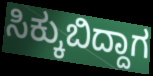
ಸಿಕ್ಕುಬಿದ್ದಾಗ